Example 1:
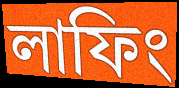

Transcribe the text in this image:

লাফিং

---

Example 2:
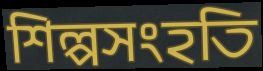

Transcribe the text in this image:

শিল্পসংহতি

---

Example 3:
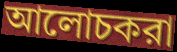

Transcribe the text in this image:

আলোচকরা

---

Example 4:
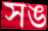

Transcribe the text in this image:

সঙ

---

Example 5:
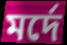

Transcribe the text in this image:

মর্দে